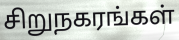
சிறுநகரங்கள்